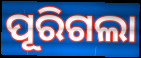
ପୂରିଗଲା